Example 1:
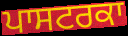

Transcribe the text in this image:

ਪਾਸਟਰਕਾ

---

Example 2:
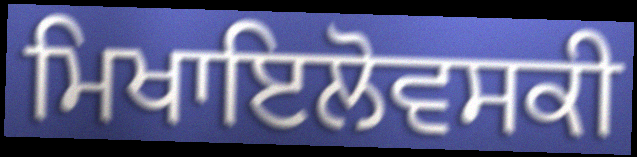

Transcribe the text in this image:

ਮਿਖਾਇਲੋਵਸਕੀ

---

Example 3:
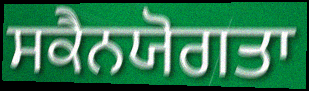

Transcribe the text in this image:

ਸਕੈਨਯੋਗਤਾ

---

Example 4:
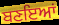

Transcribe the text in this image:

ਬਣਇਆਂ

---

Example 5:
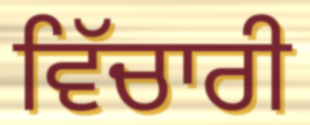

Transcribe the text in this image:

ਵਿੱਚਾਰੀ